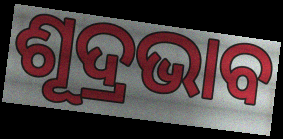
ଶୂଦ୍ରଭାବ